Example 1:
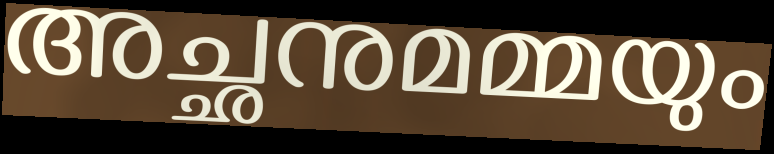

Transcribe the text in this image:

അച്ഛനുമമ്മയും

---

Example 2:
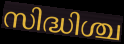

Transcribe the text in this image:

സിദ്ധിശ്ച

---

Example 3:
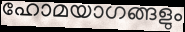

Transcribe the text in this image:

ഹോമയാഗങ്ങളും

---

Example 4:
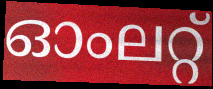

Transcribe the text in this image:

ഓംലറ്റ്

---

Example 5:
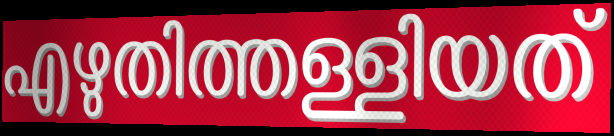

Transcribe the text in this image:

എഴുതിത്തള്ളിയത്